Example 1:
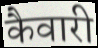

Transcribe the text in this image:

कैवारी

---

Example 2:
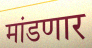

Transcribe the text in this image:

मांडणार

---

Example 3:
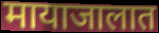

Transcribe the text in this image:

मायाजालात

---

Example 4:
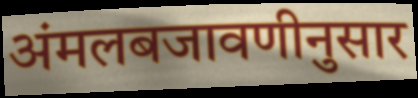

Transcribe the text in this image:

अंमलबजावणीनुसार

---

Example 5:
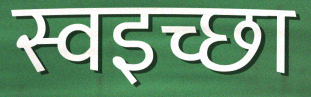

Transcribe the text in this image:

स्वइच्छा